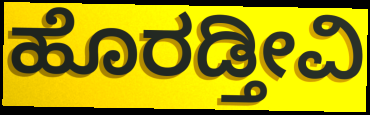
ಹೊರಡ್ತೀವಿ